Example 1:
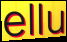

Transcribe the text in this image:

ellu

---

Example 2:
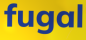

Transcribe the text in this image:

fugal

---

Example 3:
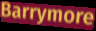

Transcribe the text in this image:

Barrymore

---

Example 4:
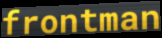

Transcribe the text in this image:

frontman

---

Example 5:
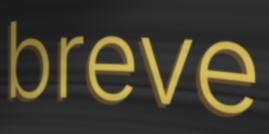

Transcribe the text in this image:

breve